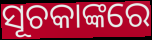
ସୂଚକାଙ୍କରେ